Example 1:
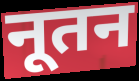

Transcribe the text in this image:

नूतन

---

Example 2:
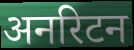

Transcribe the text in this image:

अनरिटन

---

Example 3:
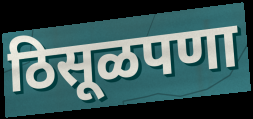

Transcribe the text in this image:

ठिसूळपणा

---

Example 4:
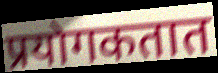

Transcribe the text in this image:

प्रयोगकतात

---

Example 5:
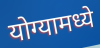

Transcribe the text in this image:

योग्यामध्ये